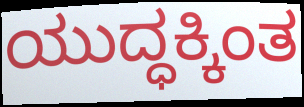
ಯುದ್ಧಕ್ಕಿಂತ